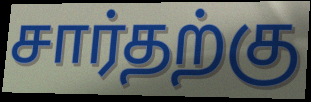
சார்தற்கு